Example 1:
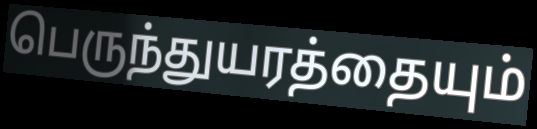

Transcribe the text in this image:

பெருந்துயரத்தையும்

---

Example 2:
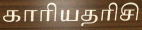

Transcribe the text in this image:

காரியதரிசி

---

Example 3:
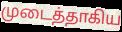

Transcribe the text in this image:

முடைத்தாகிய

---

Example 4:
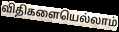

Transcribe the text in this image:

விதிகளையெல்லாம்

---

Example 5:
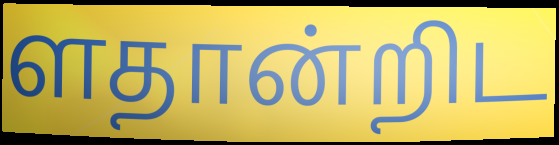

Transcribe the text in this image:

ளதான்றிட